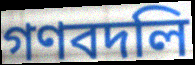
গণবদলি